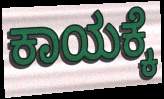
ಕಾಯಕ್ಕೆ